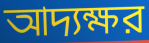
আদ্যক্ষর